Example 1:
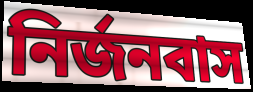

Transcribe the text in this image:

নির্জনবাস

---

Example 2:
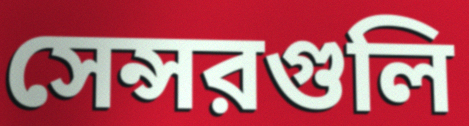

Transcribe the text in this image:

সেন্সরগুলি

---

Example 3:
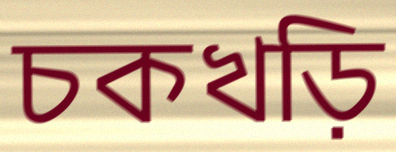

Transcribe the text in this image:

চকখড়ি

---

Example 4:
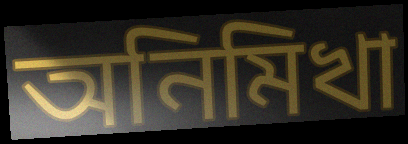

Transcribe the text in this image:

অনিমিখা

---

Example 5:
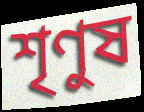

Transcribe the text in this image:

শৃণুষ